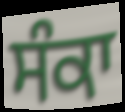
ਸੰਕਾ